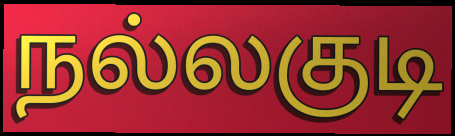
நல்லகுடி